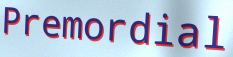
Premordial